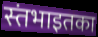
स्तंभाइतका